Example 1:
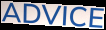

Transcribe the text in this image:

ADVICE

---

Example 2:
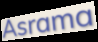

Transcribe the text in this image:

Asrama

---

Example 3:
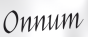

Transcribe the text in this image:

Onnum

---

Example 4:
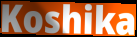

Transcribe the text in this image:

Koshika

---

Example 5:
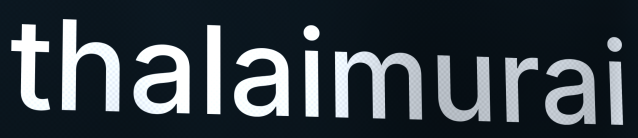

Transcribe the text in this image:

thalaimurai